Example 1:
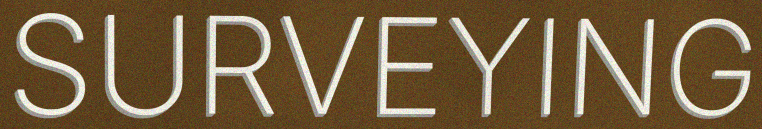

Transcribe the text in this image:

SURVEYING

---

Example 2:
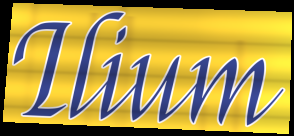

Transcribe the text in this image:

Ilium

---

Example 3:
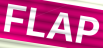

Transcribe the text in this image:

FLAP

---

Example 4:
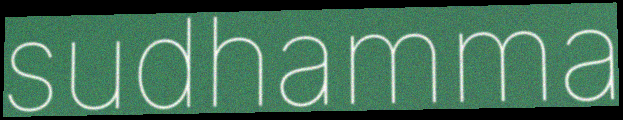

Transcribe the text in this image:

sudhamma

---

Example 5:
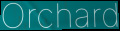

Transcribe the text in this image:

Orchard